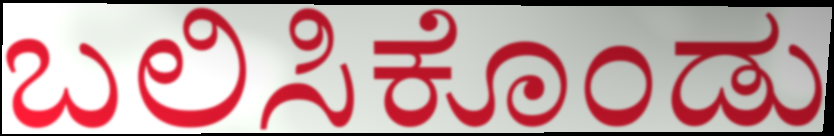
ಬಲಿಸಿಕೊಂಡು